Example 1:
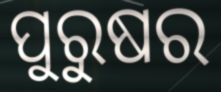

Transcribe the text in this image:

ପୁରୁଷର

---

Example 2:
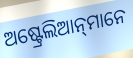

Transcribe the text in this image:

ଅଷ୍ଟ୍ରେଲିଆନ୍‌ମାନେ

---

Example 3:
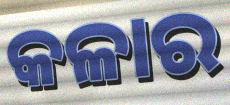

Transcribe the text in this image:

କଳାର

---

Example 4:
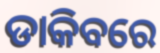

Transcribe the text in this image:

ଡାକିବରେ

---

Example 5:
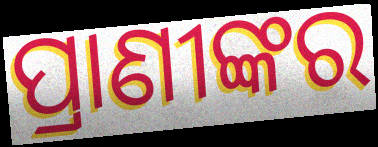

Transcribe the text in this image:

ପ୍ରାଣୀଙ୍କର